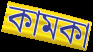
কামকা